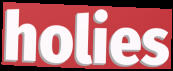
holies